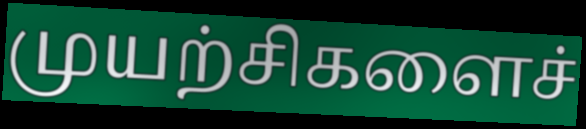
முயற்சிகளைச்